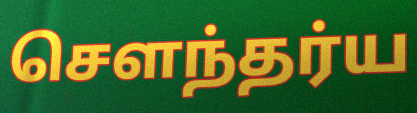
செளந்தர்ய